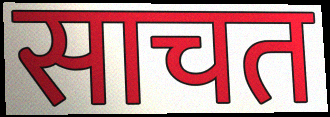
साचत